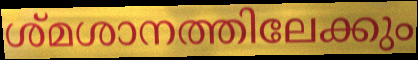
ശ്മശാനത്തിലേക്കും